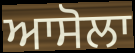
ਆਸੋਲਾ